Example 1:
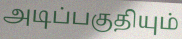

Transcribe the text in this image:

அடிப்பகுதியும்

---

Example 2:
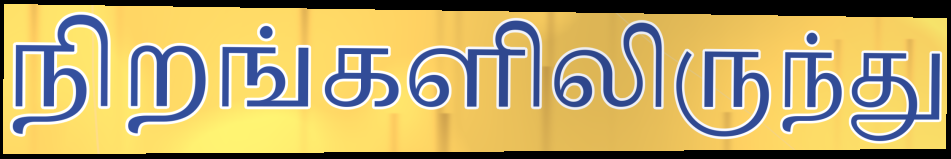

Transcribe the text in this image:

நிறங்களிலிருந்து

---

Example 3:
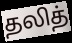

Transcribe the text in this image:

தலித்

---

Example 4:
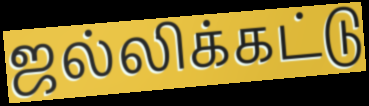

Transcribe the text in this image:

ஜல்லிக்கட்டு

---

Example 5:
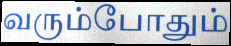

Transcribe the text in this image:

வரும்போதும்